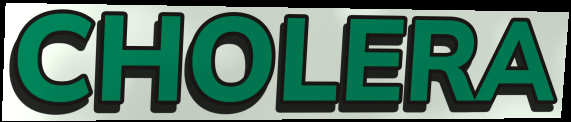
CHOLERA